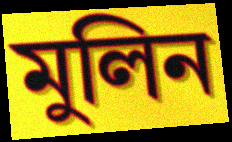
মুলিন